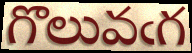
గొలువఁగ